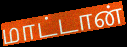
மாட்டான்